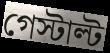
গেস্টাল্ট